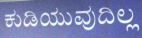
ಕುಡಿಯುವುದಿಲ್ಲ